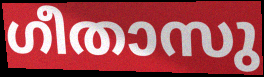
ഗീതാസു